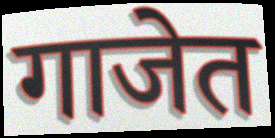
गाजेत